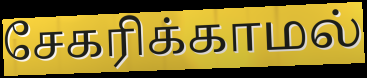
சேகரிக்காமல்